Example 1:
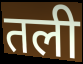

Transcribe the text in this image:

तली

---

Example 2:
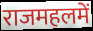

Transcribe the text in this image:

राजमहलमें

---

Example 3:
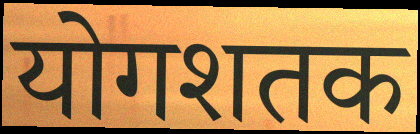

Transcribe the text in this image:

योगशतक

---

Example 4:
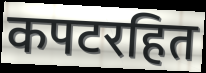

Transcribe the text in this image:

कपटरहित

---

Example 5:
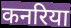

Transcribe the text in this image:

कनरिया